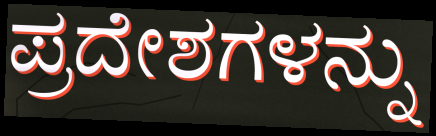
ಪ್ರದೇಶಗಳನ್ನು